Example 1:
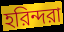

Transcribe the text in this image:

হরিন্দরা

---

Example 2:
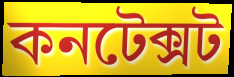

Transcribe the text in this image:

কনটেক্সট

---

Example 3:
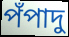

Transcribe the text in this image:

পঁপাদু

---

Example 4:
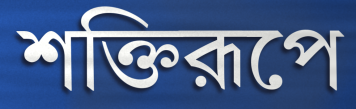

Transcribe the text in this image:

শক্তিরূপে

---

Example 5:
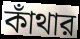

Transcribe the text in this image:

কাঁথার